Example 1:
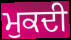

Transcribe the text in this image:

ਮੁਕਦੀ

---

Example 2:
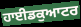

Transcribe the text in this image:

ਹਾਈਡਕੁਆਟਰ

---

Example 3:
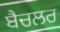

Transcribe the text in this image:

ਬੈਚਲਰ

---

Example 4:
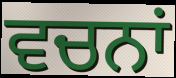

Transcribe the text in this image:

ਵਚਨਾਂ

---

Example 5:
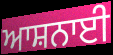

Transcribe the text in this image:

ਆਸ਼ਨਾਈ